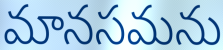
మానసమను